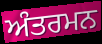
ਅੰਤਰਮਨ